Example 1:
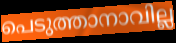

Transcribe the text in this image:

പെടുത്താനാവില്ല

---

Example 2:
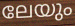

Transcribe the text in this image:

ലേയും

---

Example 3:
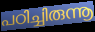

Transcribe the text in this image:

പഠിച്ചിരുന്നൂ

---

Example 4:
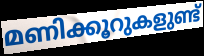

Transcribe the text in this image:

മണിക്കൂറുകളുണ്ട്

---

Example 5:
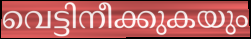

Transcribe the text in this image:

വെട്ടിനീക്കുകയും